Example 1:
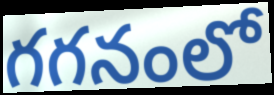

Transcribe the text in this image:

గగనంలో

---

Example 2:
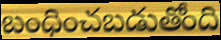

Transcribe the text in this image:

బంధించబడుతోంది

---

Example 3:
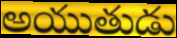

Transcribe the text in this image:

అయుతుడు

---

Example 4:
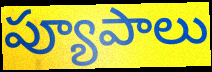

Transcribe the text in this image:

ప్యూపాలు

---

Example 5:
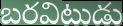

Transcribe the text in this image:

బరవిటుడు